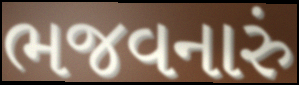
ભજવનારું